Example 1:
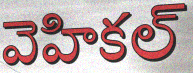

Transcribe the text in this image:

వెహికల్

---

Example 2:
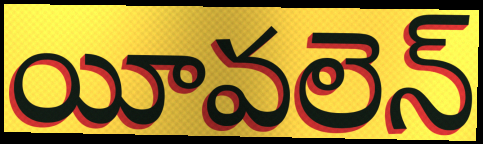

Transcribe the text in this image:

యీవలెన్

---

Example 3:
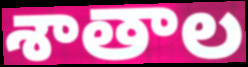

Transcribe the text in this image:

శాతాల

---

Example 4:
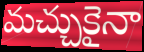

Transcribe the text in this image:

మచ్చుకైనా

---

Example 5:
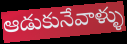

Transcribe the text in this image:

ఆడుకునేవాళ్ళు